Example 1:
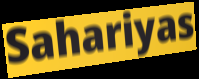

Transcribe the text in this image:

Sahariyas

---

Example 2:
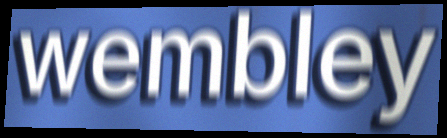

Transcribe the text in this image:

wembley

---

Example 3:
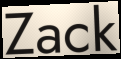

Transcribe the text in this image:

Zack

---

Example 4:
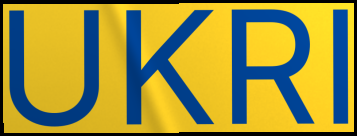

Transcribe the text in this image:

UKRI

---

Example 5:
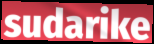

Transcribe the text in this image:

sudarike